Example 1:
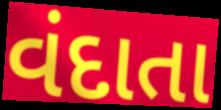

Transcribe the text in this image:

વંદાતા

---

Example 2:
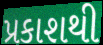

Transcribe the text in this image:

પ્રકાશથી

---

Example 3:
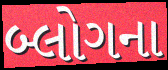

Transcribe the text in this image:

બ્લોગના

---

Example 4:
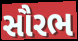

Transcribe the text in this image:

સૌરભ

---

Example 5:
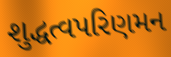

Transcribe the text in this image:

શુદ્ધત્વપરિણમન